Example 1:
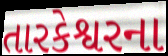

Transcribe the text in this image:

તારકેશ્વરના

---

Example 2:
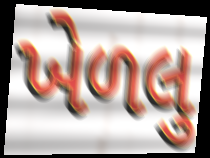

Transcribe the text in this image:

ખેળલુ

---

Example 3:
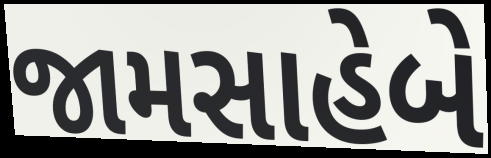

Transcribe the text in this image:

જામસાહેબે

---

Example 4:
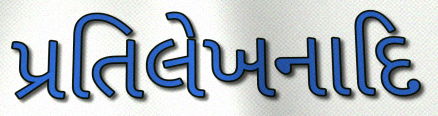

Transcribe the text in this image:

પ્રતિલેખનાદિ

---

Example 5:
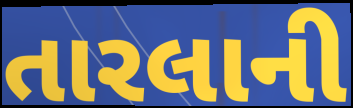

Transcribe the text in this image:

તારલાની